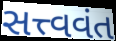
સત્ત્વવંત